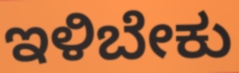
ಇಳಿಬೇಕು